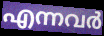
എന്നവർ